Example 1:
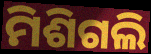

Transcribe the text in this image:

ମିଶିଗଲି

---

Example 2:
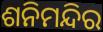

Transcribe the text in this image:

ଶନିମନ୍ଦିର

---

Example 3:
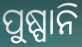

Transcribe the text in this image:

ପୁଷ୍ପାନି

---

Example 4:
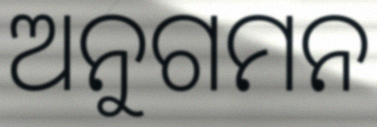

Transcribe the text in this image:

ଅନୁଗମନ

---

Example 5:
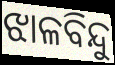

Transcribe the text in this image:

ଝାଳବିନ୍ଦୁ